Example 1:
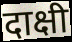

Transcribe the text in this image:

दाक्षी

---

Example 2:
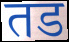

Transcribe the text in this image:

तड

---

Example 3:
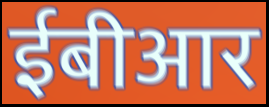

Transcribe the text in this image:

ईबीआर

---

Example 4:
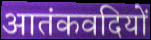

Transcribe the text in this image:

आतंकवदियों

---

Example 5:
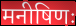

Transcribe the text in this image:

मनीषिणः